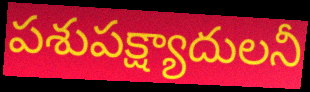
పశుపక్ష్యాదులనీ